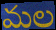
మల